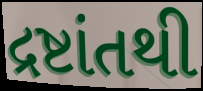
દ્રષ્ટાંતથી